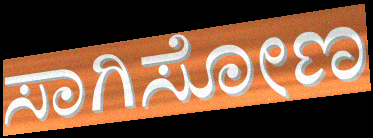
ಸಾಗಿಸೋಣ